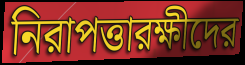
নিরাপত্তারক্ষীদের